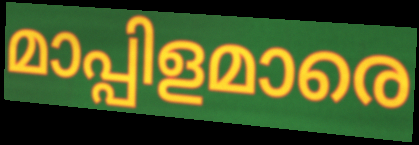
മാപ്പിളമാരെ